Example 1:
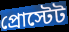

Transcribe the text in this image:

প্রোস্টেট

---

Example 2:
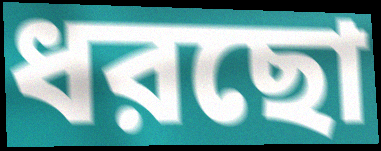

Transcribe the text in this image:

ধরছো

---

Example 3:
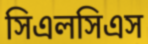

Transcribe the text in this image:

সিএলসিএস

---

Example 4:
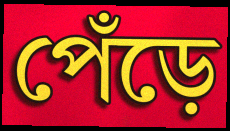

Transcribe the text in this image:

পেঁড়ে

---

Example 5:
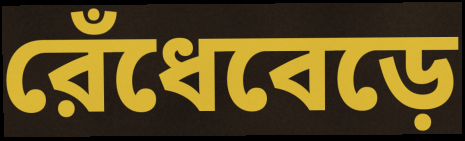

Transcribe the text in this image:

রেঁধেবেড়ে